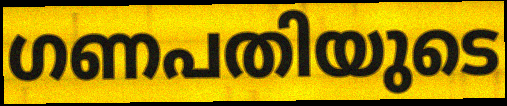
ഗണപതിയുടെ